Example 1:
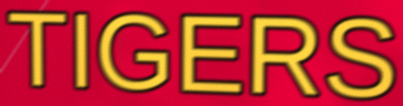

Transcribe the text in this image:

TIGERS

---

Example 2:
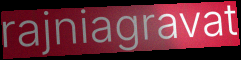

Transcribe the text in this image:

rajniagravat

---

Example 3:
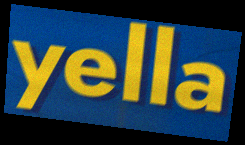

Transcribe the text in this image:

yella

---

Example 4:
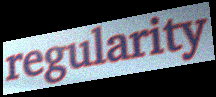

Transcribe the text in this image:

regularity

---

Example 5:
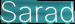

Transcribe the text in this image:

Sarad